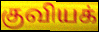
குவியக்